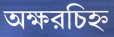
অক্ষরচিহ্ন